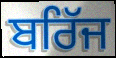
ਬਰਿੱਜ